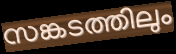
സങ്കടത്തിലും